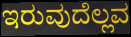
ಇರುವುದೆಲ್ಲವ